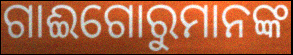
ଗାଈଗୋରୁମାନଙ୍କ